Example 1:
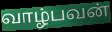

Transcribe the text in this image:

வாழ்பவன்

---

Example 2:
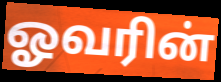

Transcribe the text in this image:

ஓவரின்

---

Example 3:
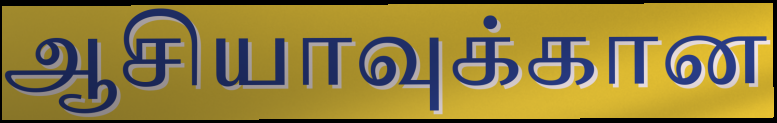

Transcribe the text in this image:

ஆசியாவுக்கான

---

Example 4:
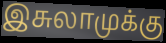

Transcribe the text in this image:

இசுலாமுக்கு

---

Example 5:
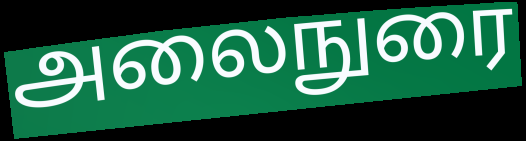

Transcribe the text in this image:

அலைநுரை